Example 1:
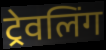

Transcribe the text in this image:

ट्रेवलिंग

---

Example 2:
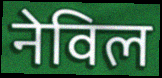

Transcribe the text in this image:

नेविल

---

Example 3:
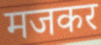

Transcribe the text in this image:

मजकर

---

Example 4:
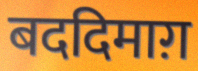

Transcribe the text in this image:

बददिमाग़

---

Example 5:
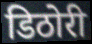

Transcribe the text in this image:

डिठोरी